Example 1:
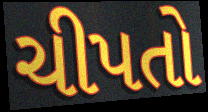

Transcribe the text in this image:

ચીપતો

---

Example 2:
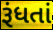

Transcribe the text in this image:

રૂંધતાં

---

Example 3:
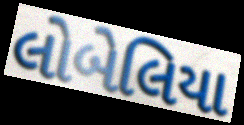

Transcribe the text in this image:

લોબેલિયા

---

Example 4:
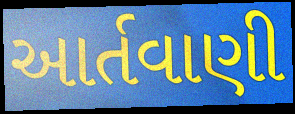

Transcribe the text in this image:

આર્તવાણી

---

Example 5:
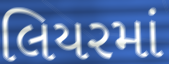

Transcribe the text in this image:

લિયરમાં